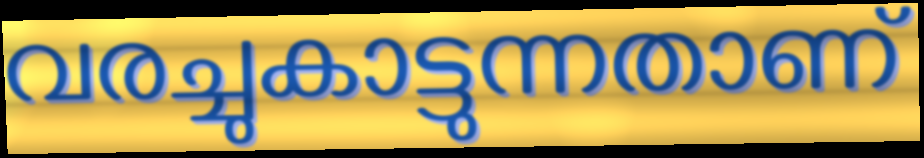
വരച്ചുകാട്ടുന്നതാണ്